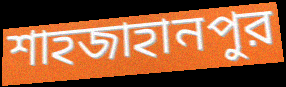
শাহজাহানপুর